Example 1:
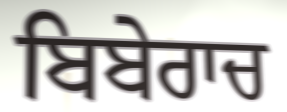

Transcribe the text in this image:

ਬਿਬੇਰਾਚ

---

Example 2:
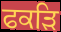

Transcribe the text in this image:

ਫਕੜਿ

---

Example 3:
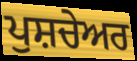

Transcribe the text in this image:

ਪੁਸ਼ਚੇਅਰ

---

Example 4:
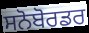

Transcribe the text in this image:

ਸਨੋਬੋਰਡਰ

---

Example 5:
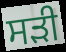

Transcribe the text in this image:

ਸੜੀ